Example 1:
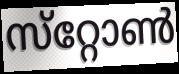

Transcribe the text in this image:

സ്‌റ്റോൺ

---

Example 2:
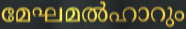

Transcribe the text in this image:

മേഘമൽഹാറും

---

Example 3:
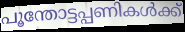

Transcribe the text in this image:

പൂന്തോട്ടപ്പണികൾക്ക്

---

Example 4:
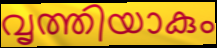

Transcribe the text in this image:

വൃത്തിയാകും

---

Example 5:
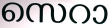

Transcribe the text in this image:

സെറാ